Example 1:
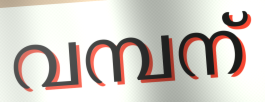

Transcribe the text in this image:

വമ്പന്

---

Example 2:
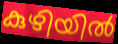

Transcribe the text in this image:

കുഴിയിൽ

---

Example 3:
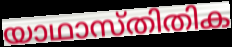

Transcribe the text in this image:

യാഥാസ്തിതിക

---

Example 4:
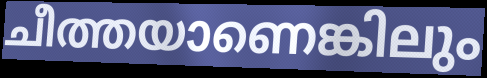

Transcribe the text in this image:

ചീത്തയാണെങ്കിലും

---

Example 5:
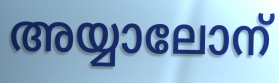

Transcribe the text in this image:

അയ്യാലോന്